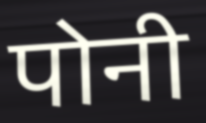
पोनी